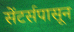
सेंटर्सपासून